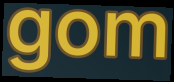
gom